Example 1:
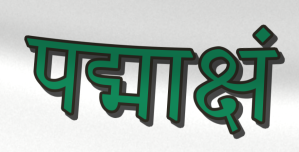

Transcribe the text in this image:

पद्माक्षं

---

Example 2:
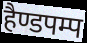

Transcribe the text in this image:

हैण्डपम्प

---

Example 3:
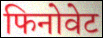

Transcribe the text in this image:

फिनोवेट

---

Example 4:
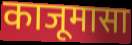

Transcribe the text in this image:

काजूमासा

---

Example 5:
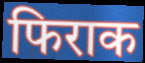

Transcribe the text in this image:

फिराक